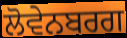
ਲੋਵੇਨਬਰਗ